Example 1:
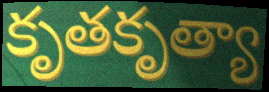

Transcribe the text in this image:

కృతకృత్యా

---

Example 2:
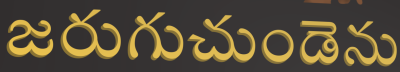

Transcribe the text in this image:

జరుగుచుండెను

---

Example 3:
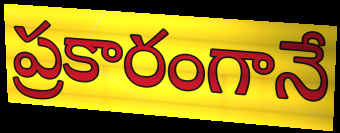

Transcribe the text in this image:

ప్రకారంగానే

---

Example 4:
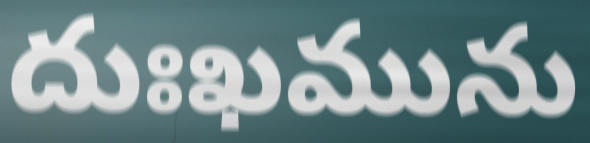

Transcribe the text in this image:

దుఃఖమును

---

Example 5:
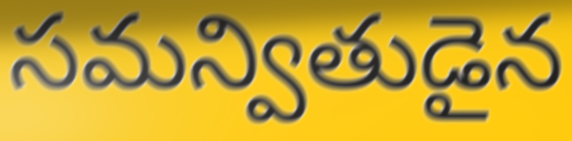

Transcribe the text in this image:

సమన్వితుడైన